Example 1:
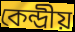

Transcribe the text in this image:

কেন্দ্ৰীয়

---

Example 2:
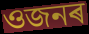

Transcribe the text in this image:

ওজনৰ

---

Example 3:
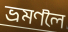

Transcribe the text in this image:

ভ্ৰমণলৈ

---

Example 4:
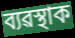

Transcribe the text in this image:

ব্যৱস্থাক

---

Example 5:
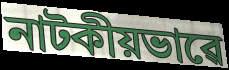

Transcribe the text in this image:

নাটকীয়ভাৱে